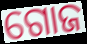
ଗୋଜ